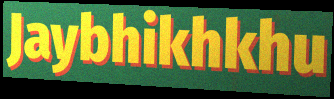
Jaybhikhkhu